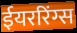
ईयररिंग्स